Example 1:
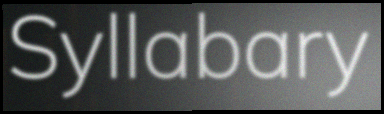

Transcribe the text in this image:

Syllabary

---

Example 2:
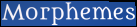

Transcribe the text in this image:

Morphemes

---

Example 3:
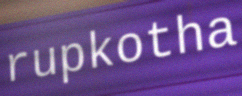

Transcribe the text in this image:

rupkotha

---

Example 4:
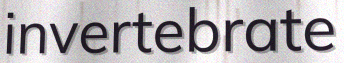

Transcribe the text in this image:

invertebrate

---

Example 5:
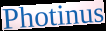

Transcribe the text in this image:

Photinus